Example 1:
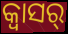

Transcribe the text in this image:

କ୍ୱାସର୍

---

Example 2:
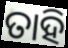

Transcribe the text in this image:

ତାହି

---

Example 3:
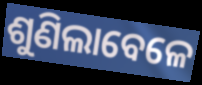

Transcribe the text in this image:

ଶୁଣିଲାବେଳେ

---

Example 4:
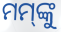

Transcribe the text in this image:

ମମ୍‌ଙ୍କୁ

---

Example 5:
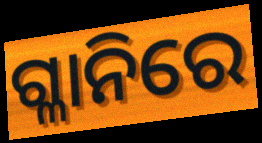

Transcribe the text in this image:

ଗ୍ଳାନିରେ